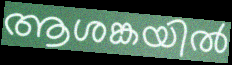
ആശങ്കയിൽ